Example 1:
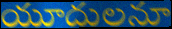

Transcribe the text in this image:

యూదులనూ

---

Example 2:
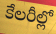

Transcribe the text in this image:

కేలరీల్లో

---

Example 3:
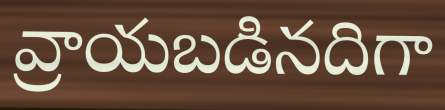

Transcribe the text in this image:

వ్రాయబడినదిగా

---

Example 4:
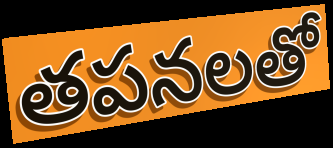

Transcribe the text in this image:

తపనలతో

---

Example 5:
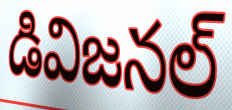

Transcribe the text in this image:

డివిజనల్